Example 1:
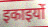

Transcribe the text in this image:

इकाइयों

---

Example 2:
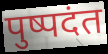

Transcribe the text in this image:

पुष्पदंत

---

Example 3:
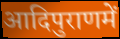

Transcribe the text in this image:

आदिपुराणमें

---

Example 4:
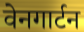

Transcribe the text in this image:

वेनगार्टन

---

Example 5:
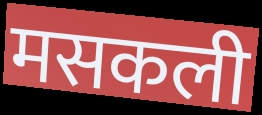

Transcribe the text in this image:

मसकली